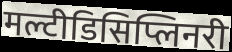
मल्टीडिसिप्लिनरी